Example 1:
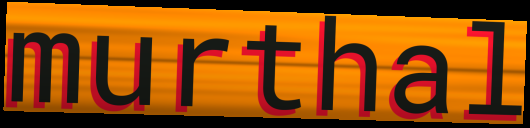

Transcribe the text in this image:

murthal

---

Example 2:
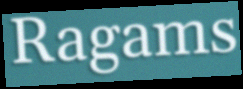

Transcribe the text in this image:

Ragams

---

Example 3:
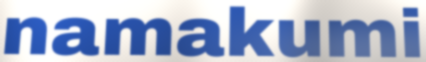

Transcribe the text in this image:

namakumi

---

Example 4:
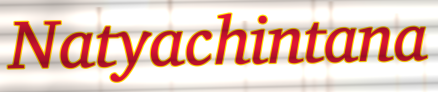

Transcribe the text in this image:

Natyachintana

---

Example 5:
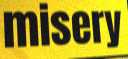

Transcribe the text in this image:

misery